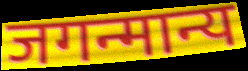
जगन्मान्य